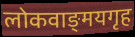
लोकवाङ्मयगृह